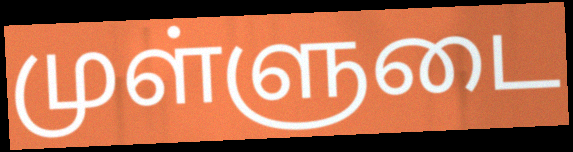
முள்ளுடை